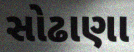
સોઢાણા